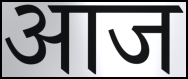
आज